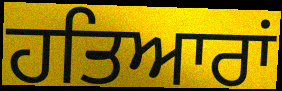
ਹਤਿਆਰਾਂ